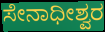
ಸೇನಾಧೀಶ್ವರ